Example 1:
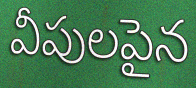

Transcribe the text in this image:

వీపులపైన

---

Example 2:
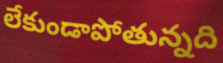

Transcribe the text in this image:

లేకుండాపోతున్నది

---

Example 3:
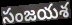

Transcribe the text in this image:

సంజయశ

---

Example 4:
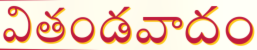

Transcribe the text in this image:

వితండవాదం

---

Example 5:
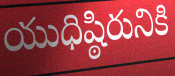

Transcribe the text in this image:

యుధిష్ఠిరునికి